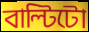
বাল্টিটো